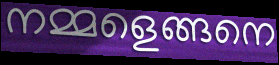
നമ്മളെങ്ങനെ